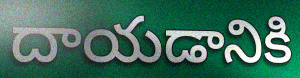
దాయడానికి